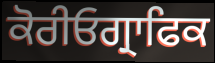
ਕੋਰੀਓਗ੍ਰਾਫਿਕ